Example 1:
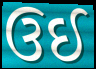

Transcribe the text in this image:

ઉઈ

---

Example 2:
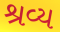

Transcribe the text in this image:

શ્રવ્ય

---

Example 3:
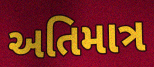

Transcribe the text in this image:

અતિમાત્ર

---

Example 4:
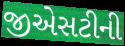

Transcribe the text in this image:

જીએસટીની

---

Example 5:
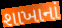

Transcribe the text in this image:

શાખાનાં